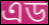
এড